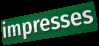
impresses